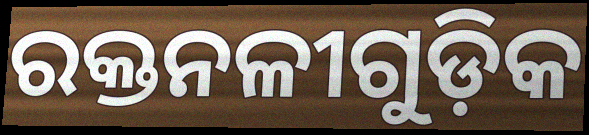
ରକ୍ତନଳୀଗୁଡ଼ିକ